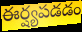
ఈర్ష్యపడడం